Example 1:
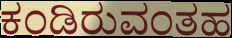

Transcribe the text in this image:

ಕಂಡಿರುವಂತಹ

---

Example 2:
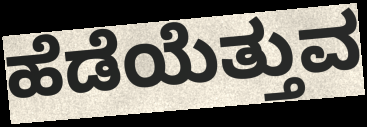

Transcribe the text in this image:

ಹೆಡೆಯೆತ್ತುವ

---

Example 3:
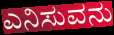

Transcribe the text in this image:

ಎನಿಸುವನು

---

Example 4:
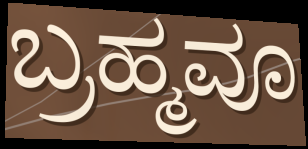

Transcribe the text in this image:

ಬ್ರಹ್ಮವೂ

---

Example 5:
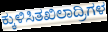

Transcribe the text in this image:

ಕ್ಕುಳಿಸಿತಖಿಲಾದ್ರಿಗಳ